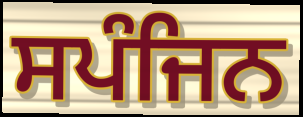
ਸਪੰਜਿਨ